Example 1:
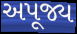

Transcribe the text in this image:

અપૂજ્ય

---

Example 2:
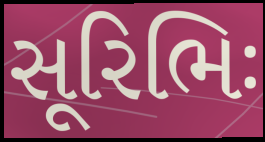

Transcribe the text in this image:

સૂરિભિઃ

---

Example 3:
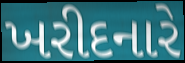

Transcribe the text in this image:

ખરીદનારે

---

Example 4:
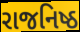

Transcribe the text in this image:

રાજનિષ્ઠ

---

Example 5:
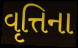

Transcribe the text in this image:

વૃત્તિના